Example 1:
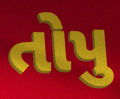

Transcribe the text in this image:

તોપુ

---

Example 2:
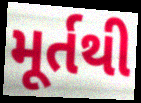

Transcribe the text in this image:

મૂર્તથી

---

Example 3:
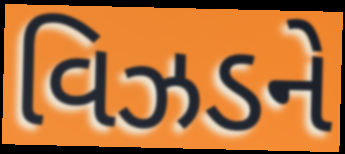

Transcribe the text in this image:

વિઝડને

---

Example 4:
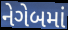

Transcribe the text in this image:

નેગેબમાં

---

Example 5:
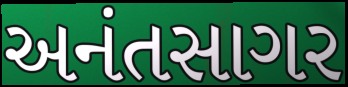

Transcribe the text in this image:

અનંતસાગર